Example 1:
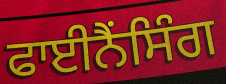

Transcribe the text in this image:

ਫਾਈਨੈਂਸਿੰਗ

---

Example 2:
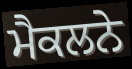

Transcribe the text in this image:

ਮੈਕਲਨੇ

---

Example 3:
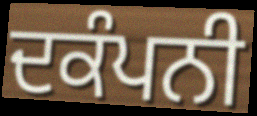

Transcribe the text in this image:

ਦਕੰਪਨੀ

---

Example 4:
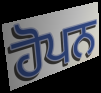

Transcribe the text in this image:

ਹੋਪਨ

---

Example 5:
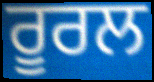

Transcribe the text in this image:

ਰੂਰਲ